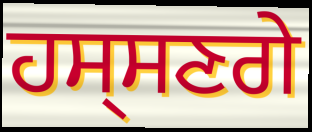
ਹਸ੍ਸਣਗੇ